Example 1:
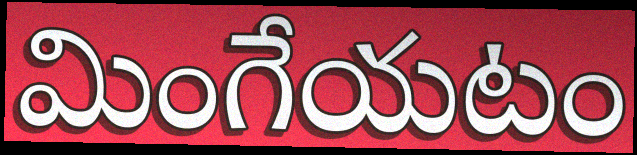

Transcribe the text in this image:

మింగేయటం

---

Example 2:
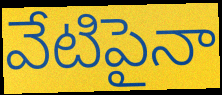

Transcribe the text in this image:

వేటిపైనా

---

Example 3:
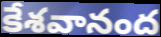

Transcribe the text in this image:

కేశవానంద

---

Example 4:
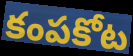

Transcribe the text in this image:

కంపకోట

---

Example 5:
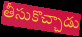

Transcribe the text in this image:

తీసుకొచ్చాడు